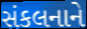
સંકલનાને